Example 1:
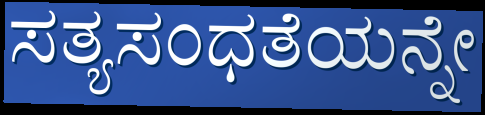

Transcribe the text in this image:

ಸತ್ಯಸಂಧತೆಯನ್ನೇ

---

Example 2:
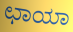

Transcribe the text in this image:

ಛಾಯಾ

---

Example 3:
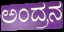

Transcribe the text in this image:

ಅಂದ್ರನ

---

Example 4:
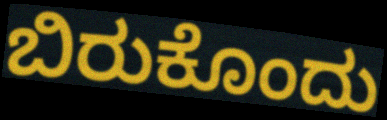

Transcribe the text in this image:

ಬಿರುಕೊಂದು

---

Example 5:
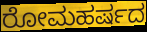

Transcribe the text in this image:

ರೋಮಹರ್ಷದ